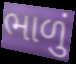
ભાળું